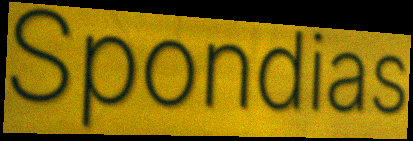
Spondias